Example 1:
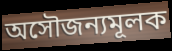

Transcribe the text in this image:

অসৌজন্যমূলক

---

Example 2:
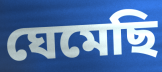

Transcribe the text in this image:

ঘেমেছি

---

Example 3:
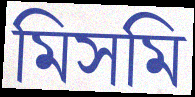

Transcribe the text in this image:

মিসমি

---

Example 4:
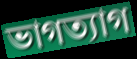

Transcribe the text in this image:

ভাগত্যাগ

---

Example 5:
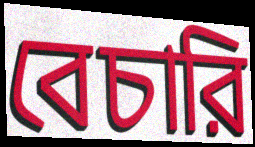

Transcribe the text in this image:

বেচারি